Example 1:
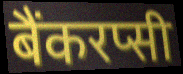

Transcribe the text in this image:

बैंकरप्सी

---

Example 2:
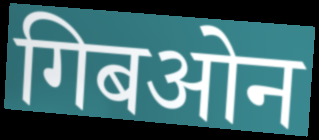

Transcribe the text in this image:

गिबओन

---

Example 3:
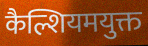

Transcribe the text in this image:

कैल्शियमयुक्त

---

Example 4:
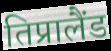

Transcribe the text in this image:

तिप्रालैंड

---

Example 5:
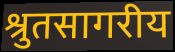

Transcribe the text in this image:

श्रुतसागरीय